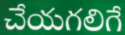
చేయగలిగే